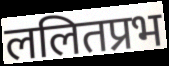
ललितप्रभ